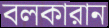
বলকারান